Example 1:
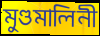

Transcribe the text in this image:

মুণ্ডমালিনী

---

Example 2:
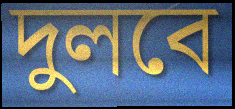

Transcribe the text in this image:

দুলবে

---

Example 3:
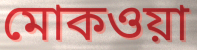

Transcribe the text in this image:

মোকওয়া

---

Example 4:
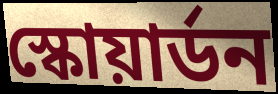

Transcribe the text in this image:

স্কোয়ার্ডন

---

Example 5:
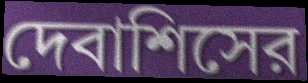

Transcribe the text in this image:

দেবাশিসের